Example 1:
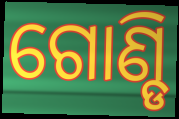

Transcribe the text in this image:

ଗୋଣ୍ଡି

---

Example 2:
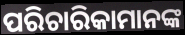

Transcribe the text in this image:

ପରିଚାରିକାମାନଙ୍କ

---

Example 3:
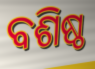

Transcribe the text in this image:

ବଶିଷ୍ଠ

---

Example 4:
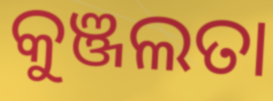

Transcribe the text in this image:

କୁଞ୍ଜଲତା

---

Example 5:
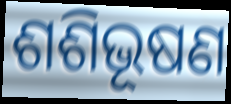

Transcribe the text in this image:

ଶଶିଭୂଷଣ